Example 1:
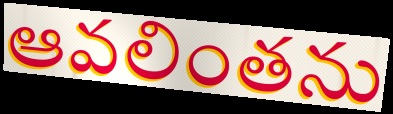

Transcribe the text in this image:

ఆవలింతను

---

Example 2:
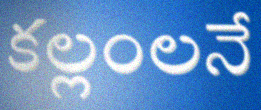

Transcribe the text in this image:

కల్లంలనే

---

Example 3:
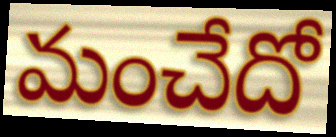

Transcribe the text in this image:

మంచేదో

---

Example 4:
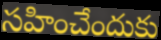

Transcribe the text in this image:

సహించేందుకు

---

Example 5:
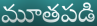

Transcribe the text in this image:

మూతపడి